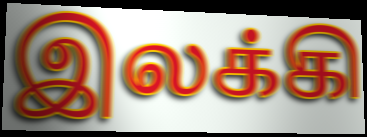
இலக்கி